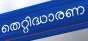
തെറ്റിദ്ധാരണ